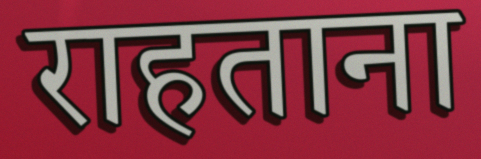
राहताना